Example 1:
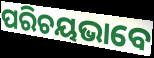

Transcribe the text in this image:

ପରିଚୟଭାବେ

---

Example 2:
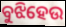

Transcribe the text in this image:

ବୁଝିହେଉ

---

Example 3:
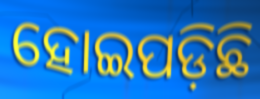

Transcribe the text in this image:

ହୋଇପଡ଼ିଛି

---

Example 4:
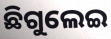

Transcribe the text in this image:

ଛିଗୁଲେଇ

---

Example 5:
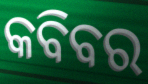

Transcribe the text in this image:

କବିବର